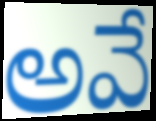
అవే